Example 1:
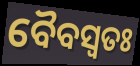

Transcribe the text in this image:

ବୈବସ୍ଵତଃ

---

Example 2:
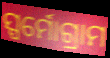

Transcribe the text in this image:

ସ୍ପର୍ମୋଗ୍ରାମ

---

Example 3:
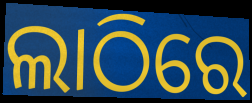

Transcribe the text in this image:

ଲାଠିରେ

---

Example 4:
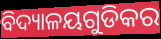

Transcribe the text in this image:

ବିଦ୍ୟାଳୟଗୁଡିକର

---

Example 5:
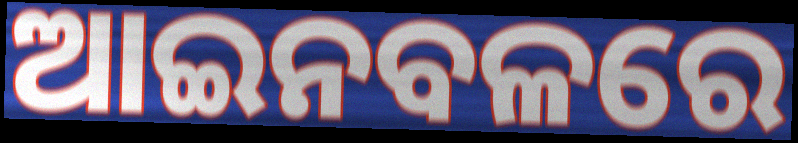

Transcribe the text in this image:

ଆଇନବଳରେ